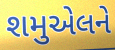
શમુએલને